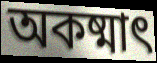
অকষ্মাৎ